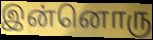
இன்னொரு